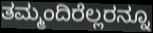
ತಮ್ಮಂದಿರೆಲ್ಲರನ್ನೂ